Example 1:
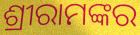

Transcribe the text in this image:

ଶ୍ରୀରାମଙ୍କର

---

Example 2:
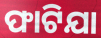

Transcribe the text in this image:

ଫାଟିଯା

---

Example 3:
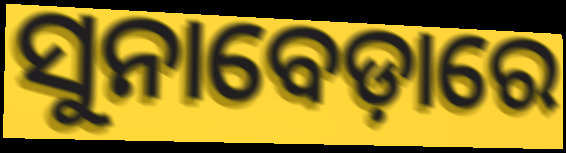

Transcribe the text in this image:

ସୁନାବେଡ଼ାରେ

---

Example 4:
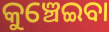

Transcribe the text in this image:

କୁଞ୍ଚେଇବା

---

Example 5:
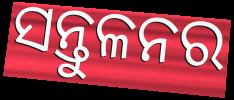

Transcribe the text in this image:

ସନ୍ତୁଳନର